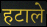
हटाले